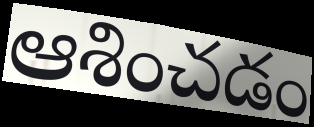
ఆశించడం